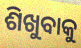
ଶିଖୁବାକୁ